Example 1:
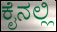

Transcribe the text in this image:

ಕೈನಲ್ಲಿ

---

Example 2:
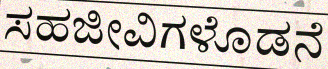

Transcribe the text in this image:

ಸಹಜೀವಿಗಳೊಡನೆ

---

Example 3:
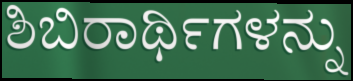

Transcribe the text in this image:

ಶಿಬಿರಾರ್ಥಿಗಳನ್ನು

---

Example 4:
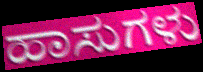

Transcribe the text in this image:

ಹಾಸುಗಳು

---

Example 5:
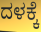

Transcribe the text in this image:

ದಳಕ್ಕೆ